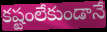
కష్టంలేకుండానే